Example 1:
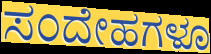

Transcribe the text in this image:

ಸಂದೇಹಗಳೂ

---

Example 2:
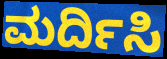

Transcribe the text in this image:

ಮರ್ದಿಸಿ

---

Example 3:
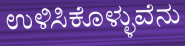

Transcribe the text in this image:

ಉಳಿಸಿಕೊಳ್ಳುವೆನು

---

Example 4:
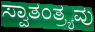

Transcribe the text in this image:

ಸ್ವಾತಂತ್ರ್ಯವು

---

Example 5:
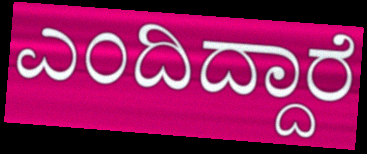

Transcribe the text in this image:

ಎಂದಿದ್ದಾರೆ